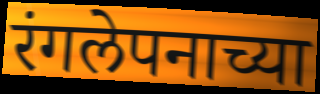
रंगलेपनाच्या